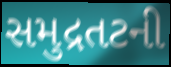
સમુદ્રતટની